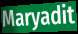
Maryadit